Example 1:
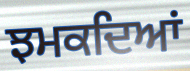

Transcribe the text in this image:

ਝਮਕਦਿਆਂ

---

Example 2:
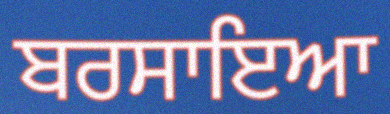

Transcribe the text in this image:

ਬਰਸਾਇਆ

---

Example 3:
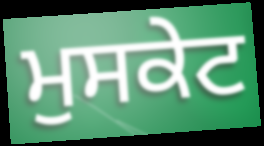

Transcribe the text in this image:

ਮੁਸਕੇਟ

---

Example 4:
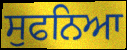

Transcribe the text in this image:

ਸੁਫਨਿਆ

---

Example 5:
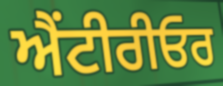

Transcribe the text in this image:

ਐਂਟੀਰੀਓਰ